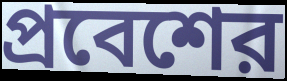
প্রবেশের